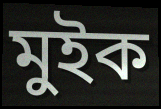
মুইক